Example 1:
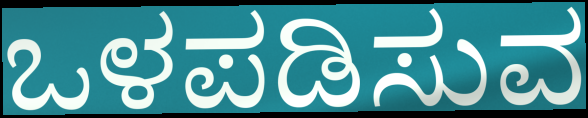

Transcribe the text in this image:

ಒಳಪಡಿಸುವ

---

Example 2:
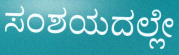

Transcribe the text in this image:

ಸಂಶಯದಲ್ಲೇ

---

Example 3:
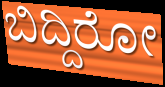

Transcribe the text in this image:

ಬಿದ್ದಿರೋ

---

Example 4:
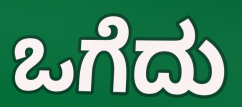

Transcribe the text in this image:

ಒಗೆದು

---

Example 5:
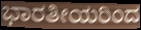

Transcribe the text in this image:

ಭಾರತೀಯರಿಂದ